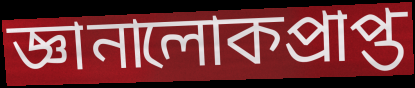
জ্ঞানালোকপ্রাপ্ত